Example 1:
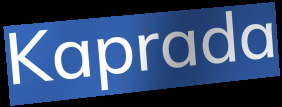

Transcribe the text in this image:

Kaprada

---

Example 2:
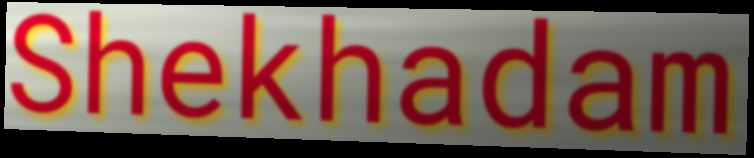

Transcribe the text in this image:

Shekhadam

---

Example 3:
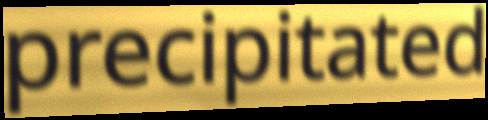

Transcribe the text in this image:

precipitated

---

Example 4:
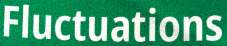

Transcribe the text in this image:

Fluctuations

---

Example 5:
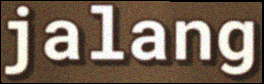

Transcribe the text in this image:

jalang